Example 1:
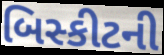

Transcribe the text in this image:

બિસ્કીટની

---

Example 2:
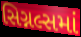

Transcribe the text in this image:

સિગ્નલ્સમાં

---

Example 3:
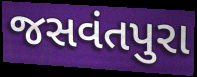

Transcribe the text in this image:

જસવંતપુરા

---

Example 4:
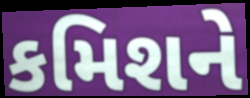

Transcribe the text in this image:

કમિશને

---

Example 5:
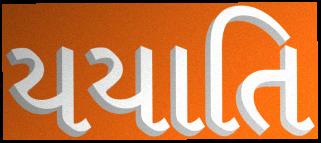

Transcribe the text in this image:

યયાતિ